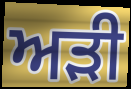
ਅੜੀ